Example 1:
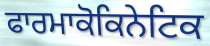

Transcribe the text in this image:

ਫਾਰਮਾਕੋਕਿਨੇਟਿਕ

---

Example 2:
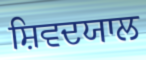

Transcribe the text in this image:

ਸ਼ਿਵਦਯਾਲ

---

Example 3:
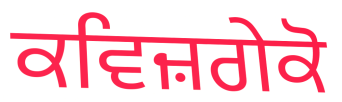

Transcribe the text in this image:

ਕਵਿਜ਼ਗੇਕੋ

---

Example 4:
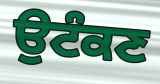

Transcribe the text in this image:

ਉਟੰਕਣ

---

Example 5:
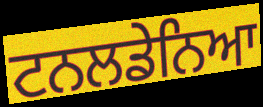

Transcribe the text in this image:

ਟਨਲਡੇਨਿਆ